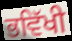
ਭਵਿੱਖੀ